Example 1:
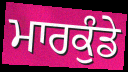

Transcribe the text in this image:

ਮਾਰਕੁੰਡੇ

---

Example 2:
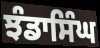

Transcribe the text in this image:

ਝੰਡਾਸਿੰਘ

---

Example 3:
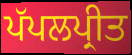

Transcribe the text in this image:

ਪੱਪਲਪ੍ਰੀਤ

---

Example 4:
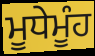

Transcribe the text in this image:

ਮੂਧੇਮੂੰਹ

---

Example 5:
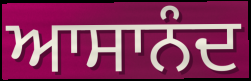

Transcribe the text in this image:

ਆਸਾਨੰਦ